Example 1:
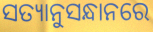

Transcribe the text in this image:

ସତ୍ୟାନୁସନ୍ଧାନରେ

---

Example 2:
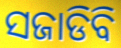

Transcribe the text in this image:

ସଜାଡିବି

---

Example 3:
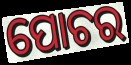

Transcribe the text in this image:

ପୋଚର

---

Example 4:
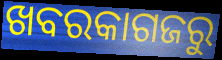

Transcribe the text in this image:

ଖବରକାଗଜରୁ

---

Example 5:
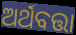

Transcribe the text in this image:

ଅର୍ଥବତ୍ତା